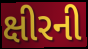
ક્ષીરની